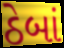
ઠેબાં